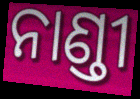
ନାଣ୍ଡୀ